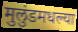
मुलुंडमधल्या